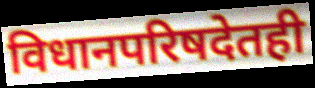
विधानपरिषदेतही